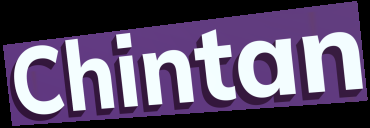
Chintan